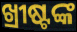
ଖ୍ରୀଷ୍ଟଙ୍କ